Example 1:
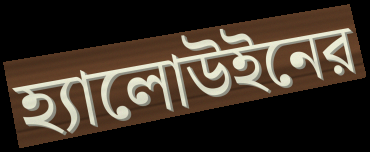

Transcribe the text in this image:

হ্যালোউইনের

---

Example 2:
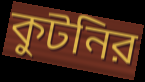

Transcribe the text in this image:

কুটনির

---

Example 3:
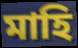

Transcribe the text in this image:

মাহি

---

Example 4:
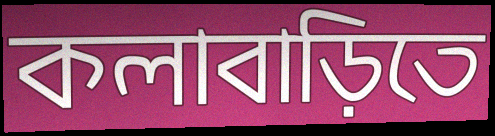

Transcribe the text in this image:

কলাবাড়িতে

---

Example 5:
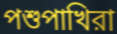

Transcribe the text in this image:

পশুপাখিরা